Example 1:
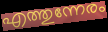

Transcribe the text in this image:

എത്തുന്നേരം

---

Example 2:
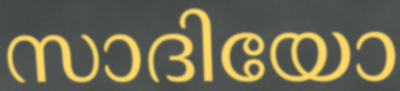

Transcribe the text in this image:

സാദിയോ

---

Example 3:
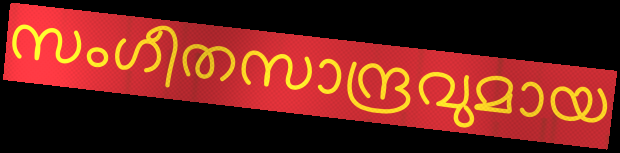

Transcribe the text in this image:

സംഗീതസാന്ദ്രവുമായ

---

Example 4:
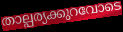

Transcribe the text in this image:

താല്പര്യക്കുറവോടെ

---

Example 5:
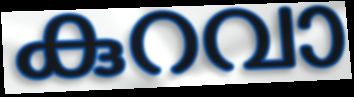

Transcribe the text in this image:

കുറവാ